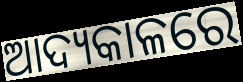
ଆଦ୍ୟକାଳରେ